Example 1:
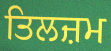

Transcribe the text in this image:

ਤਿਲਜ਼ਮ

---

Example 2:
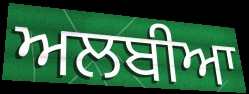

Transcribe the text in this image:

ਅਲਬੀਆ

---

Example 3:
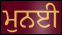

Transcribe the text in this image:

ਮੁਨਈ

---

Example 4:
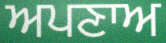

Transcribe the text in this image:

ਅਪਣਾਅ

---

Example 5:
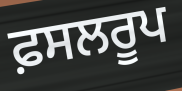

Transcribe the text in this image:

ਫ਼ਸਲਰੂਪ